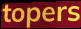
topers